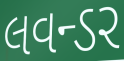
લવન્ડર